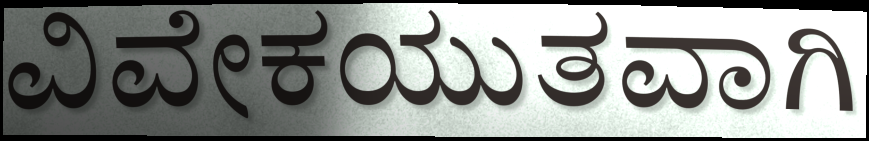
ವಿವೇಕಯುತವಾಗಿ